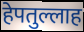
हेपतुल्लाह